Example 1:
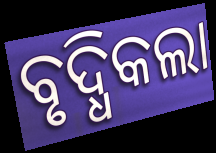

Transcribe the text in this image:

ବୃଦ୍ଧିକଲା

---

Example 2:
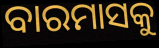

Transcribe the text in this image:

ବାରମାସକୁ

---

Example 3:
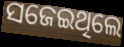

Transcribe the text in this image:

ସଜେଇଥିଲେ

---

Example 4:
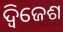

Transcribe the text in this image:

ଦ୍ୱିଜେଶ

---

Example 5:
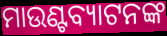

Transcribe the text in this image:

ମାଉଣ୍ଟବ୍ୟାଟନଙ୍କ